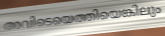
അവിടെയെത്തിയെങ്കിലും